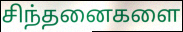
சிந்தனைகளை